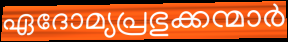
ഏദോമ്യപ്രഭുക്കന്മാർ